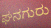
ಘನಗುರು